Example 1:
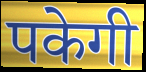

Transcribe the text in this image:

पकेगी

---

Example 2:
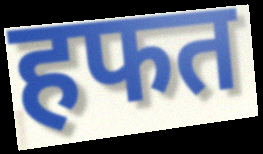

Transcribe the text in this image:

हफत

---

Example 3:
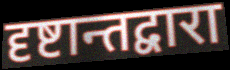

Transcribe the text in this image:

दृष्टान्तद्वारा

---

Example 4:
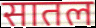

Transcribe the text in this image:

सातल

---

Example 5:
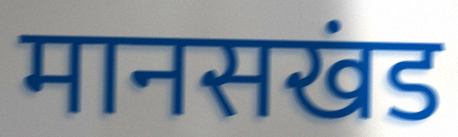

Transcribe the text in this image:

मानसखंड